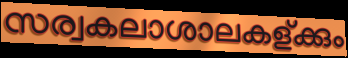
സര്വകലാശാലകള്ക്കും